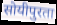
सोयीपुरता